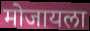
मोजायला